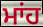
ਮਾਂਹ